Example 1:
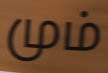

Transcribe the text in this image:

மும்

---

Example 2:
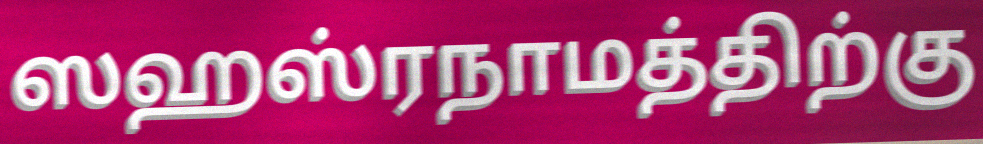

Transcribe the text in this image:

ஸஹஸ்ரநாமத்திற்கு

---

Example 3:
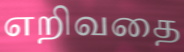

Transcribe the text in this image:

எறிவதை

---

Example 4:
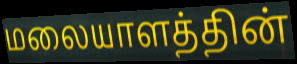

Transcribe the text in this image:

மலையாளத்தின்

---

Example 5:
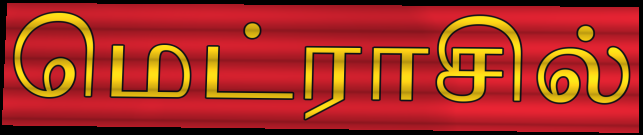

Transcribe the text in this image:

மெட்ராசில்